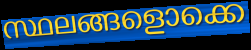
സ്ഥലങ്ങളൊക്കെ